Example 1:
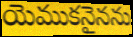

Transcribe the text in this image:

యెముకనైనను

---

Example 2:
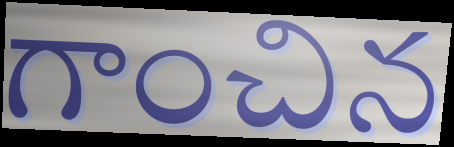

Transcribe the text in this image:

గాంచిన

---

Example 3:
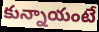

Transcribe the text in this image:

కున్నాయంటే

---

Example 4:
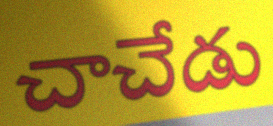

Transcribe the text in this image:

చాచేడు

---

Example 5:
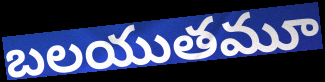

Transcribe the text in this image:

బలయుతమూ